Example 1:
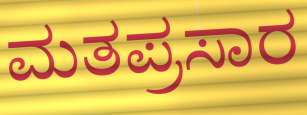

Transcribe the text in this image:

ಮತಪ್ರಸಾರ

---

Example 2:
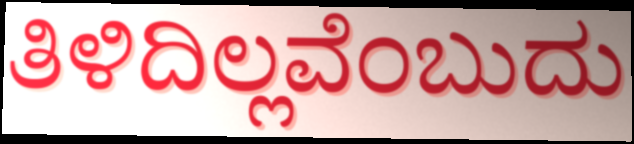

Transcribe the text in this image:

ತಿಳಿದಿಲ್ಲವೆಂಬುದು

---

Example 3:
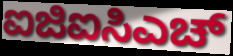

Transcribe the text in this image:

ಐಜಿಐಸಿಎಚ್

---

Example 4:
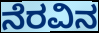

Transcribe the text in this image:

ನೆರವಿನ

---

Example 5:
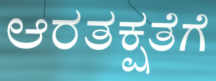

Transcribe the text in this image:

ಆರತಕ್ಷತೆಗೆ